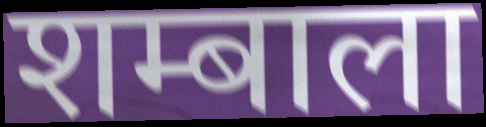
शम्बाला